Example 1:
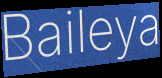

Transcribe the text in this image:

Baileya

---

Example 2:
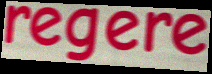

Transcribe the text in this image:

regere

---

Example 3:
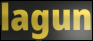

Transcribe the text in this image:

lagun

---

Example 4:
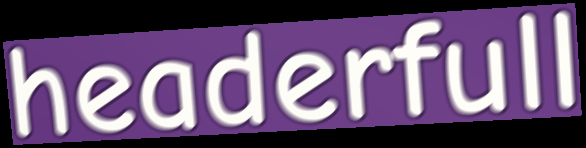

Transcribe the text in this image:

headerfull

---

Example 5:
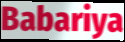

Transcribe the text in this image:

Babariya